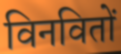
विनवितों